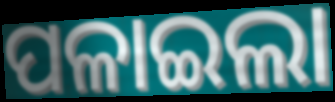
ପଳାଇଲା